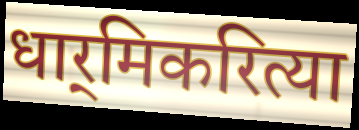
धार्मिकरित्या